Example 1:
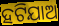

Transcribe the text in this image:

ହଟିଯାଅ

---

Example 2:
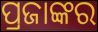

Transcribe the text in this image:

ପ୍ରଜାଙ୍କର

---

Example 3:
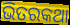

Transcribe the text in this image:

ଭିତରକଥା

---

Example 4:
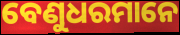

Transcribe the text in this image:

ବେଣୁଧରମାନେ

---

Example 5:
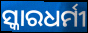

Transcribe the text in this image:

ସ୍କାରଧର୍ମୀ